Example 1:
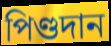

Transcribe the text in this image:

পিণ্ডদান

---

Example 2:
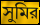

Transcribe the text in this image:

সুমির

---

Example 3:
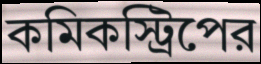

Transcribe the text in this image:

কমিকস্ট্রিপের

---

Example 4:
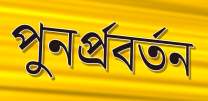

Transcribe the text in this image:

পুনর্প্রবর্তন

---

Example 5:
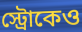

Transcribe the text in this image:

স্ট্রোকেও